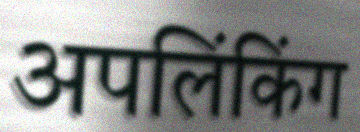
अपलिंकिंग